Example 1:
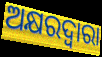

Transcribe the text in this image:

ଅକ୍ଷରଦ୍ଵାରା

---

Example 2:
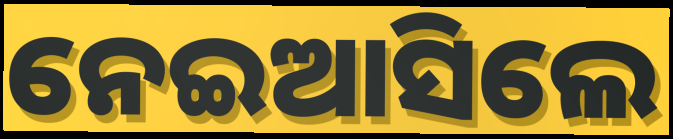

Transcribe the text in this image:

ନେଇଆସିଲେ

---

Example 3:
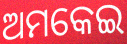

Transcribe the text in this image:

ଅମକେଇ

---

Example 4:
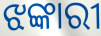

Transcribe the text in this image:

ଝଙ୍କାରୀ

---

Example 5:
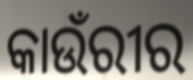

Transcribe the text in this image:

କାଉଁରୀର